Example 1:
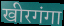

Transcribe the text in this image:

खीरगंगा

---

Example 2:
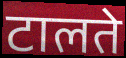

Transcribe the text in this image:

टालते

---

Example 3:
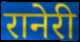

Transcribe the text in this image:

रानेरी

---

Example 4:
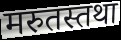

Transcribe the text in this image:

मरुतस्तथा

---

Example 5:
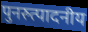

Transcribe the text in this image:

पुनरुत्पादनीय